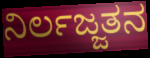
ನಿರ್ಲಜ್ಜತನ